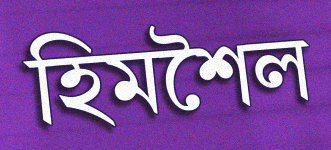
হিমশৈল